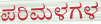
ಪರಿಮಳಗಳ